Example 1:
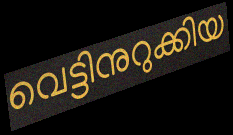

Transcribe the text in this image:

വെട്ടിനുറുക്കിയ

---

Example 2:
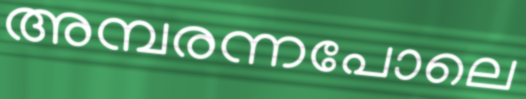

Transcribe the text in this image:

അമ്പരന്നപോലെ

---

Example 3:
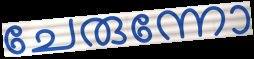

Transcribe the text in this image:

ചേരുന്നോ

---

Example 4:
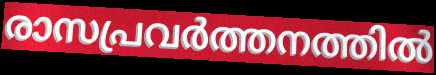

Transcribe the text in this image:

രാസപ്രവർത്തനത്തിൽ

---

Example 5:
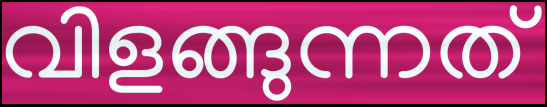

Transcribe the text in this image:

വിളങ്ങുന്നത്